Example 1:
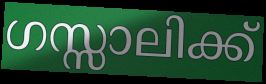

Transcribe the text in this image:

ഗസ്സാലിക്ക്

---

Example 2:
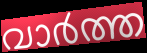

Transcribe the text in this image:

വാർത്ത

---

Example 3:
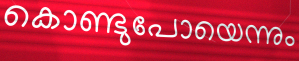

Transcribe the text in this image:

കൊണ്ടുപോയെന്നും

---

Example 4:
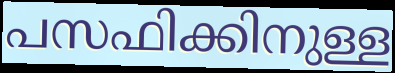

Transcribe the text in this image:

പസഫിക്കിനുള്ള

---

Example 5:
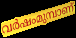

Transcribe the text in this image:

വർഷംമുമ്പാണ്